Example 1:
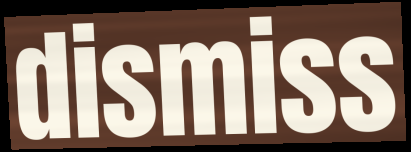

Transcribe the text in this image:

dismiss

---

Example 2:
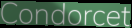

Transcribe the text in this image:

Condorcet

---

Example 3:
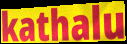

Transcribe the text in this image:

kathalu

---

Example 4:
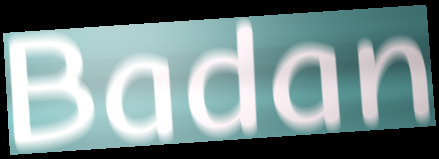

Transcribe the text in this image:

Badan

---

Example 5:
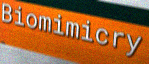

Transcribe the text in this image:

Biomimicry